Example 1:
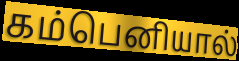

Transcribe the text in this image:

கம்பெனியால்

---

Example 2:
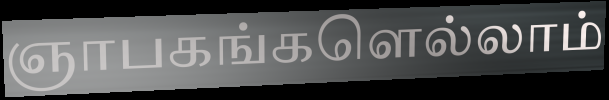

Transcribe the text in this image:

ஞாபகங்களெல்லாம்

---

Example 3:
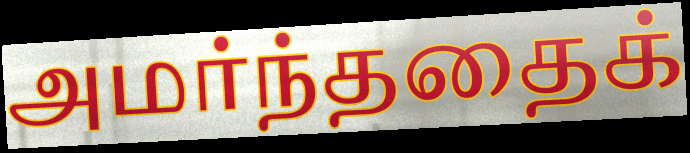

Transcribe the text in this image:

அமர்ந்ததைக்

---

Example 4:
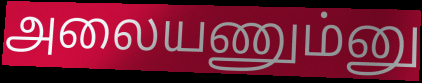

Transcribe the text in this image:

அலையணும்னு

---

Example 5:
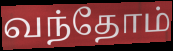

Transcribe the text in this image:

வந்தோம்